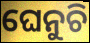
ଘେନୁଚି